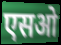
एसओ